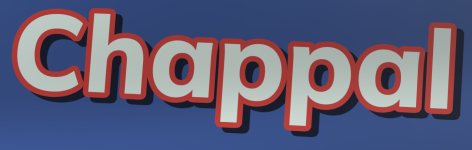
Chappal